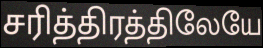
சரித்திரத்திலேயே